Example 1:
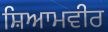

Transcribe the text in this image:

ਸ਼ਿਆਮਵੀਰ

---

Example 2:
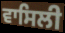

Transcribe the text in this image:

ਵਾਸਿਲੀ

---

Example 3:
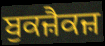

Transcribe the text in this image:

ਬੁਕਜ਼ੈਕਜ਼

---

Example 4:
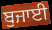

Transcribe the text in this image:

ਬੁਜਾਈ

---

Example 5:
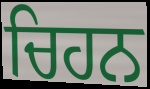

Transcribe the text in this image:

ਚਿਹਨ